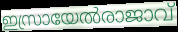
ഇസ്രായേൽരാജാവ്